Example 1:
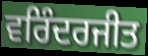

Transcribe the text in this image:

ਵਰਿੰਦਰਜੀਤ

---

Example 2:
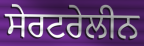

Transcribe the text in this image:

ਸੇਰਟਰੇਲੀਨ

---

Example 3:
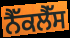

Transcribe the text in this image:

ਨੈੱਕਲੈੱਸ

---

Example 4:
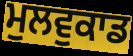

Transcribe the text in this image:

ਮੁਲਵੁਕਾਡ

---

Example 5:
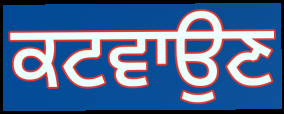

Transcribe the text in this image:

ਕਟਵਾਉਣ